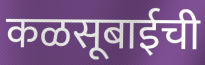
कळसूबाईची